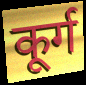
कूर्ग